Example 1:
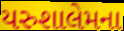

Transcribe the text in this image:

યરુશાલેમના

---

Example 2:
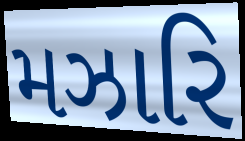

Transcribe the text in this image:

મઝારિ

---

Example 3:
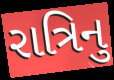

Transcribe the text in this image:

રાત્રિનુ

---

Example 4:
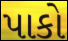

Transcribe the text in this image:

પાકો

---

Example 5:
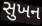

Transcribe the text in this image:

સુખન